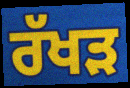
ਰੱਖੜ